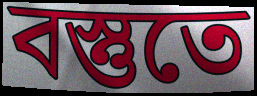
বস্তুতে